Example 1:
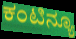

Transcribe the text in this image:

ಕಂಟಿನ್ಯೂ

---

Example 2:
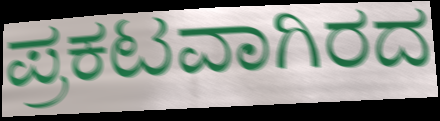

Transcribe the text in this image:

ಪ್ರಕಟವಾಗಿರದ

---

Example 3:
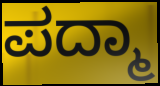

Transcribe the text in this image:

ಪದ್ಮಾ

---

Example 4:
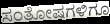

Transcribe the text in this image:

ಸಂತೋಷಗಳಿಗೂ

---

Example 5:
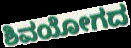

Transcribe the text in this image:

ಶಿವಯೋಗದ